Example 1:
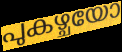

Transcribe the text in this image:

പുകഴ്ചയോ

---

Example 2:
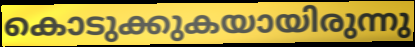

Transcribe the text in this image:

കൊടുക്കുകയായിരുന്നു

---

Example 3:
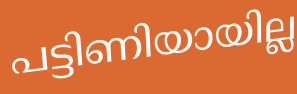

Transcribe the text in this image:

പട്ടിണിയായില്ല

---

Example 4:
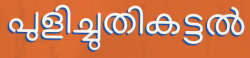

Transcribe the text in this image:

പുളിച്ചുതികട്ടൽ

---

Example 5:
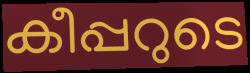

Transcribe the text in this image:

കീപ്പറുടെ